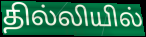
தில்லியில்